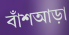
বাঁশআড়া